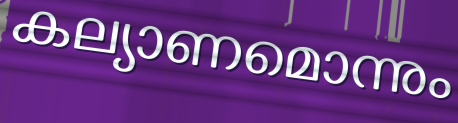
കല്യാണമൊന്നും